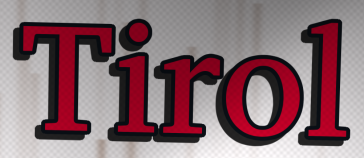
Tirol